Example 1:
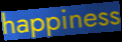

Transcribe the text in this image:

happiness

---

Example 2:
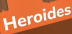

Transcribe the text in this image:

Heroides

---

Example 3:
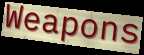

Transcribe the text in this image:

Weapons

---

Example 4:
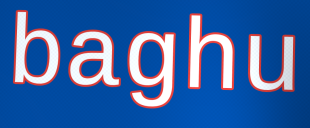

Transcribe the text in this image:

baghu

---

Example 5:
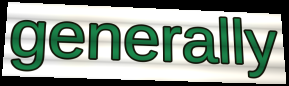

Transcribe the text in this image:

generally